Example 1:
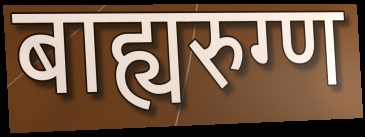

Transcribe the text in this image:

बाह्यरुग्ण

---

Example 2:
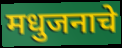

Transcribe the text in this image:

मधुजनाचे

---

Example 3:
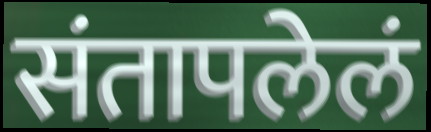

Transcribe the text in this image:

संतापलेलं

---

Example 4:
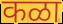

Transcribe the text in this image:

कळा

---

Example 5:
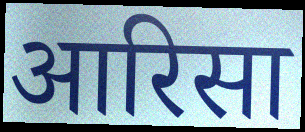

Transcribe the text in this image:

आरिसा